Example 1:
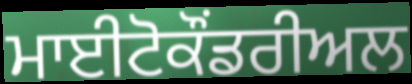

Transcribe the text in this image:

ਮਾਈਟੋਕੌਂਡਰੀਅਲ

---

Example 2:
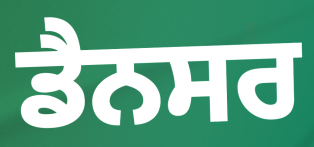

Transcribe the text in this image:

ਡੈਨਸਰ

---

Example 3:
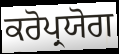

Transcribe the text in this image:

ਕਰੋਪ੍ਰਯੋਗ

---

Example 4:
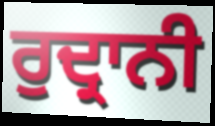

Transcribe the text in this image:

ਰੁਦ੍ਰਾਨੀ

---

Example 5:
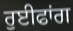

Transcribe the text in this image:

ਰੁਈਫਾਂਗ